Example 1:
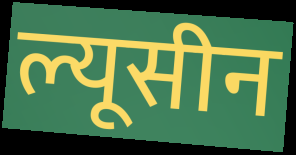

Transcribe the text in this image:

ल्यूसीन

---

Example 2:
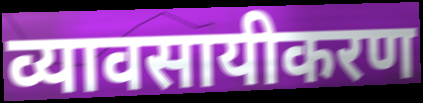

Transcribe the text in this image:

व्यावसायीकरण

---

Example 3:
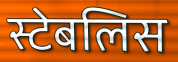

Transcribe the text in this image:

स्टेबलिस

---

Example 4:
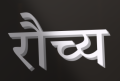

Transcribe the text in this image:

रौच्य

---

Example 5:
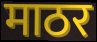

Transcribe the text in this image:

माठर